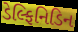
ડેલ્ફિનિડિન